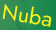
Nuba